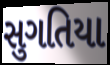
સુગતિયા